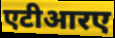
एटीआरए